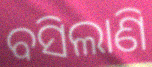
ବସିଲାଣି